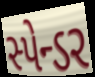
સ્પેન્ડર